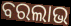
ବରଲାଭ